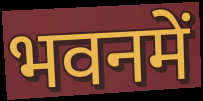
भवनमें